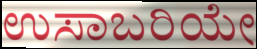
ಉಸಾಬರಿಯೇ